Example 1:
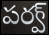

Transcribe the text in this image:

పర్వ్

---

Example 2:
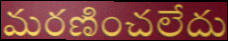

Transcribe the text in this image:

మరణించలేదు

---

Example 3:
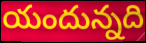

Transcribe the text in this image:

యందున్నది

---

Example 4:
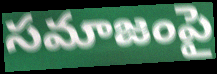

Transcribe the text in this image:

సమాజంపై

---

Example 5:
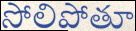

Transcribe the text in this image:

సోలిపోతూ